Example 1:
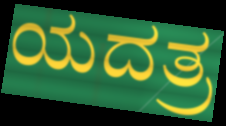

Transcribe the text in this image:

ಯದತ್ರ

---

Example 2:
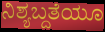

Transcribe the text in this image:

ನಿಶ್ಯಬ್ದತೆಯೂ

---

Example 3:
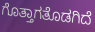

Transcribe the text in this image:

ಗೊತ್ತಾಗತೊಡಗಿದೆ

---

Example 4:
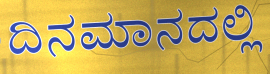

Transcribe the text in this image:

ದಿನಮಾನದಲ್ಲಿ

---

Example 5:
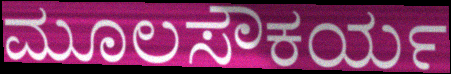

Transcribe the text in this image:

ಮೂಲಸೌಕರ್ಯ